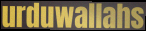
urduwallahs